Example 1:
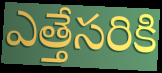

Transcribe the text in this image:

ఎత్తేసరికి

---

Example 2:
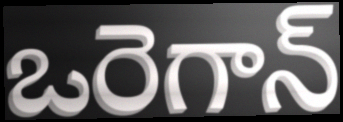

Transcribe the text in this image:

ఒరెగాన్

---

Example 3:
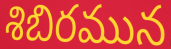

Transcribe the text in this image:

శిబిరమున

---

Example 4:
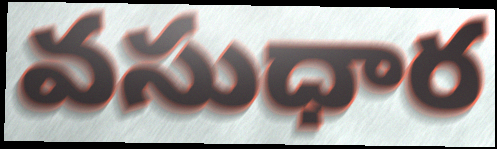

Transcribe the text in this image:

వసుధార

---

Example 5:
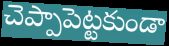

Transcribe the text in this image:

చెప్పాపెట్టకుండా